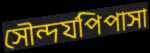
সৌন্দর্যপিপাসা